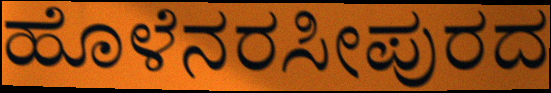
ಹೊಳೆನರಸೀಪುರದ